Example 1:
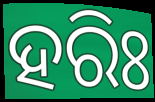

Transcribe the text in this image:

ହରିଃ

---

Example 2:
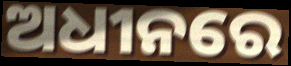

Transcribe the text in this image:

ଅଧୀନରେ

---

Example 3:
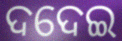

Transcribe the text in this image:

ଦଦେଇ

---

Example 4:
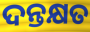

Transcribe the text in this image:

ଦନ୍ତକ୍ଷତ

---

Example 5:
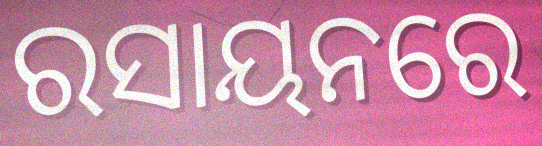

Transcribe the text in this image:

ରସାୟନରେ